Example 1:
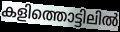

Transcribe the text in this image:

കളിത്തൊട്ടിലിൽ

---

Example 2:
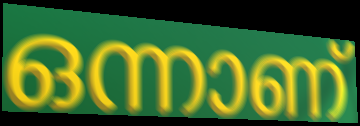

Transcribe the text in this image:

ഒന്നാണ്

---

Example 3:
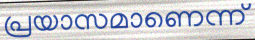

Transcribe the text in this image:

പ്രയാസമാണെന്ന്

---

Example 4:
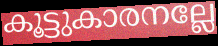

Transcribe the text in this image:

കൂട്ടുകാരനല്ലേ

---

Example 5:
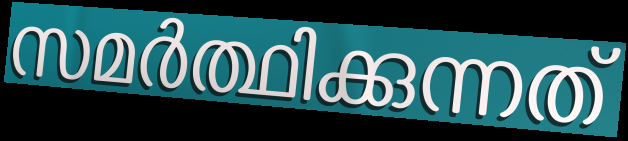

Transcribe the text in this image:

സമർത്ഥിക്കുന്നത്